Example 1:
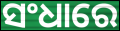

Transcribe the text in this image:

ସଂଧାରେ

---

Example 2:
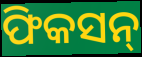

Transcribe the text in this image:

ଫିକସନ୍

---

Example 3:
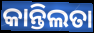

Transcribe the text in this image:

କାନ୍ତିଲତା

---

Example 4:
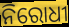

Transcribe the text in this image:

ନିରୋଧୀ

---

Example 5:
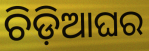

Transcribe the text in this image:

ଚିଡ଼ିଆଘର